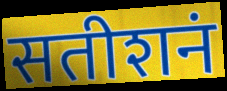
सतीशनं